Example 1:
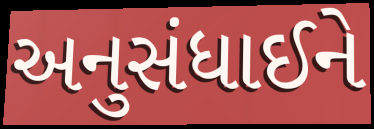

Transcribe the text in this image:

અનુસંધાઈને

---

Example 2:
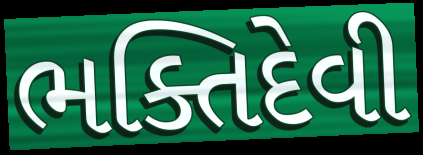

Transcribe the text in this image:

ભક્તિદેવી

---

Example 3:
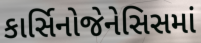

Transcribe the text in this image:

કાર્સિનોજેનેસિસમાં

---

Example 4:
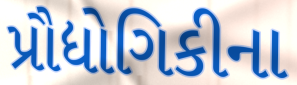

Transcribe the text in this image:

પ્રૌદ્યોગિકીના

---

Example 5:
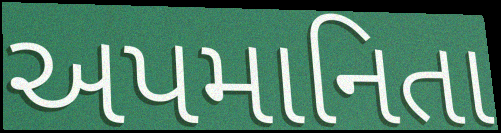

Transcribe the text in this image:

અપમાનિતા